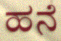
ಹನೆ